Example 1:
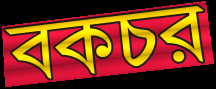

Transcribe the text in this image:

বকচর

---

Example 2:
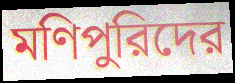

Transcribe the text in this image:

মণিপুরিদের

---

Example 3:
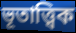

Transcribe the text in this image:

ভূতাত্ত্বিক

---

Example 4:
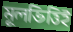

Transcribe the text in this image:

মূলভিত্তিই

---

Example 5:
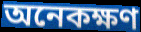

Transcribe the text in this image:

অনেকক্ষণ